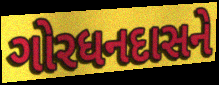
ગોરધનદાસને